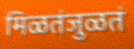
मिळतंजुळतं